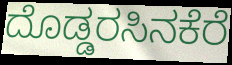
ದೊಡ್ಡರಸಿನಕೆರೆ